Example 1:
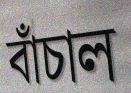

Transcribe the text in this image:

বাঁচাল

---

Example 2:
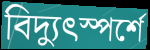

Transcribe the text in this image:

বিদ্যুৎস্পর্শে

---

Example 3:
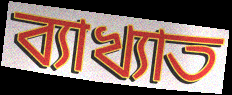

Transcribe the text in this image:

ব্যাখ্যাত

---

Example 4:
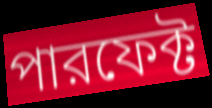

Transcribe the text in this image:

পারফেক্ট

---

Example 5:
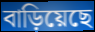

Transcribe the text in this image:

বাড়িয়েছে